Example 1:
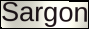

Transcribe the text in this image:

Sargon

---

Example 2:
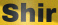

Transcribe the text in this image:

Shir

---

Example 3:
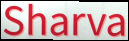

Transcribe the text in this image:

Sharva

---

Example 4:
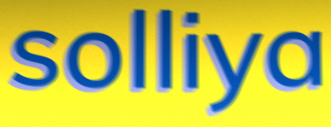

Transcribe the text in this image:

solliya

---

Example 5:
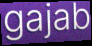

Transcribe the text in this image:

gajab